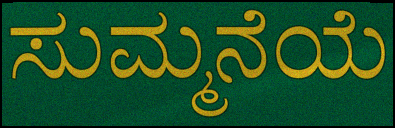
ಸುಮ್ಮನೆಯೆ